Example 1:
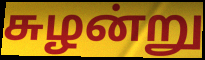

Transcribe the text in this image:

சுழன்று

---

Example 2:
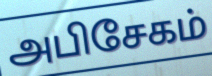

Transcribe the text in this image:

அபிசேகம்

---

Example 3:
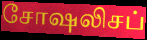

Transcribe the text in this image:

சோஷலிசப்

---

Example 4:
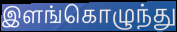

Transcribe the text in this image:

இளங்கொழுந்து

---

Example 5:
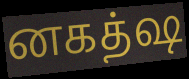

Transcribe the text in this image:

னகத்ஷ